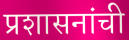
प्रशासनांची